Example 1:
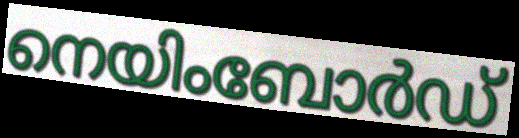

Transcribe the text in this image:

നെയിംബോർഡ്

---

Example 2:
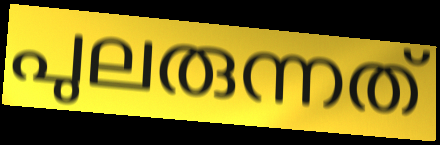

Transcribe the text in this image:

പുലരുന്നത്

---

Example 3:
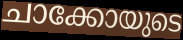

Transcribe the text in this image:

ചാക്കോയുടെ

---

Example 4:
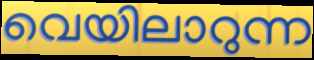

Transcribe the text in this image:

വെയിലാറുന്ന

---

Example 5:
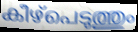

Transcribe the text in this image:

കീഴ്പെടുത്തും